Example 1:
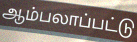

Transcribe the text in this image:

ஆம்பலாப்பட்டு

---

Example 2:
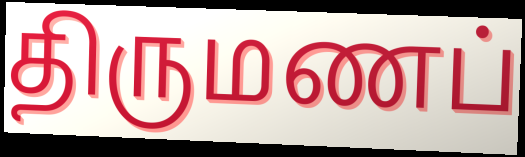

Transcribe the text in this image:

திருமணப்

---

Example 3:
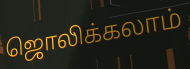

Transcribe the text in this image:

ஜொலிக்கலாம்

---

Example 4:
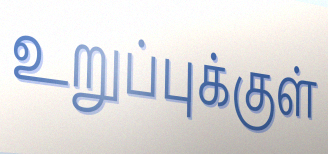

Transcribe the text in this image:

உறுப்புக்குள்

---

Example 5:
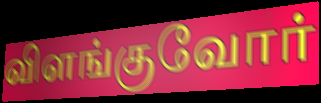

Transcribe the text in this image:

விளங்குவோர்